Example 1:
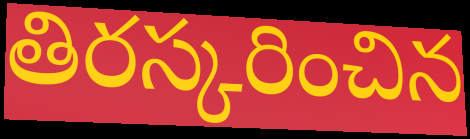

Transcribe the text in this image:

తిరస్కరించిన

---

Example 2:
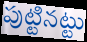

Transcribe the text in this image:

పుట్టినట్టు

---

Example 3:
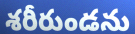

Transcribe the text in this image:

శరీరుండను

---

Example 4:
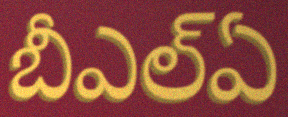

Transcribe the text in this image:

బీఎల్ఏ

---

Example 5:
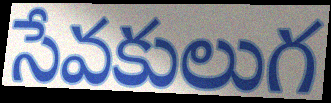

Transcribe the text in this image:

సేవకులుగ